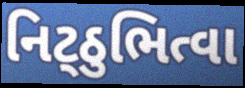
નિટ્ઠુભિત્વા